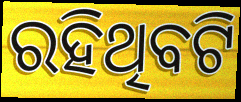
ରହିଥିବଟି